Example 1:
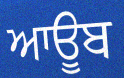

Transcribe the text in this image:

ਆਊਬ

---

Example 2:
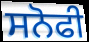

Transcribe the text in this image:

ਸਨੋਫੀ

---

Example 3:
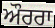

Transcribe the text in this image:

ਔਰਰਾ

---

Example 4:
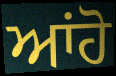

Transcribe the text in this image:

ਆਂਹੋ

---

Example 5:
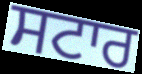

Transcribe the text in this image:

ਸਟਾਰ